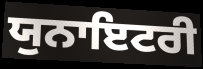
ਯੁਨਾਇਟਰੀ